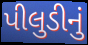
પીલુડીનું